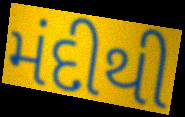
મંદીથી